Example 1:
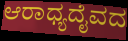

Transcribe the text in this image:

ಆರಾಧ್ಯದೈವದ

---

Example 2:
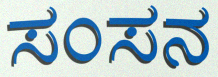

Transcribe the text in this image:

ಸಂಸನ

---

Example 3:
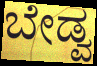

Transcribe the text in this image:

ಬೇಡ್ವ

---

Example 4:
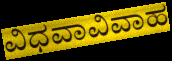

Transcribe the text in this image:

ವಿಧವಾವಿವಾಹ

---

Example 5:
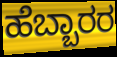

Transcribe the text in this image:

ಹೆಬ್ಬಾರರ